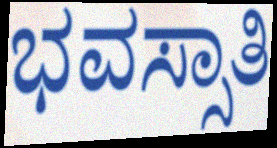
ಭವಸ್ಸಾತಿ